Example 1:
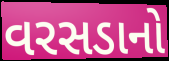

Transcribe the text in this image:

વરસડાનો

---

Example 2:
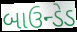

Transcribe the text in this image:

બાઉન્ડેડ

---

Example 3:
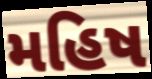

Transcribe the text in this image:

મહિષ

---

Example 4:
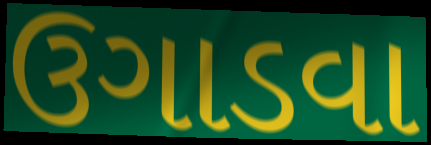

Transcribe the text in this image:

ઉગાડવા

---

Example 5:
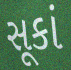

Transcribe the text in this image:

સૂકાં